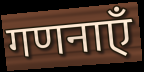
गणनाएँ